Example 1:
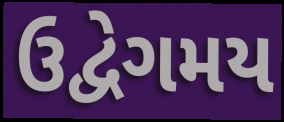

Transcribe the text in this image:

ઉદ્વેગમય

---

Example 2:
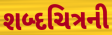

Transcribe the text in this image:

શબ્દચિત્રની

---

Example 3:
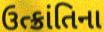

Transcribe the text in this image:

ઉત્ક્રાંતિના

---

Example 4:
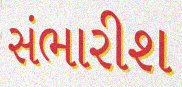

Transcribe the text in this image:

સંભારીશ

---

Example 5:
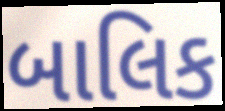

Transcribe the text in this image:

બાલિક